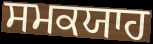
ਸਮਕਯਾਹ